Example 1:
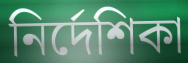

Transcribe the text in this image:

নিৰ্দেশিকা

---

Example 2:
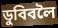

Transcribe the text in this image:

ডুবিবলৈ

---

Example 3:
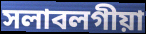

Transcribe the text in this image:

সলাবলগীয়া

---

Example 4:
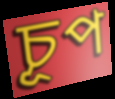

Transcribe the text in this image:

চূপ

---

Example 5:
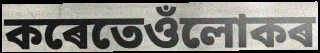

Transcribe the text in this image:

কৰেতেওঁলোকৰ